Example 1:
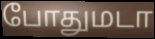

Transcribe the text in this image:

போதுமடா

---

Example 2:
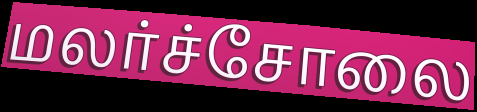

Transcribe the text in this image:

மலர்ச்சோலை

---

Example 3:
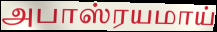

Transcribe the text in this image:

அபாஸ்ரயமாய்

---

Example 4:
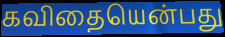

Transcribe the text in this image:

கவிதையென்பது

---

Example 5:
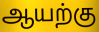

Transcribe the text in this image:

ஆயற்கு